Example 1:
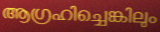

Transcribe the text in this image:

ആഗ്രഹിച്ചെങ്കിലും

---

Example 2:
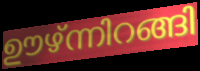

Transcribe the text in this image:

ഊഴ്ന്നിറങ്ങി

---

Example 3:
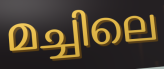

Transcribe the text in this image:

മച്ചിലെ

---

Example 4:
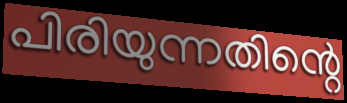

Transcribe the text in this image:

പിരിയുന്നതിന്റെ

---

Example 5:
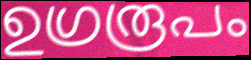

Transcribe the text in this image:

ഉഗ്രരൂപം